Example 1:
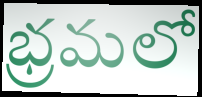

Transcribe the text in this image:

భ్రమలో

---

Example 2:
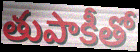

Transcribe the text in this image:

తుపాకీతో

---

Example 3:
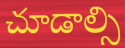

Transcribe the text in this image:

చూడాల్సి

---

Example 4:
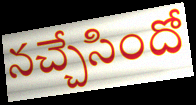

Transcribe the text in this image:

నచ్చేసిందో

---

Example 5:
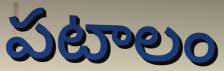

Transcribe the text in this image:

పటాలం